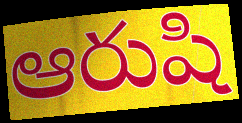
ఆరుషి